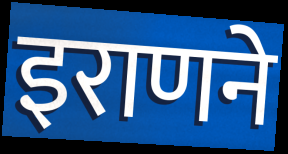
इराणने